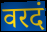
वरदं